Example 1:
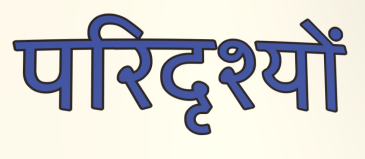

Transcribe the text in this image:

परिदृश्यों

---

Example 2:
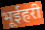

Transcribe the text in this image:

भूईहरी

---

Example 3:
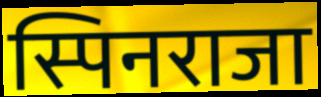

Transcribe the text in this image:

स्पिनराजा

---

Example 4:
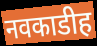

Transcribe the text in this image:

नवकाडीह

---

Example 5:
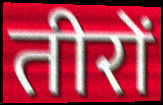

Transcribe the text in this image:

तीरों